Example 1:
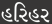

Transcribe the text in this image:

હરિહર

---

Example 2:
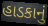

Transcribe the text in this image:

હાડકાનું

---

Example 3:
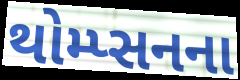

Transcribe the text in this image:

થોમ્પ્સનના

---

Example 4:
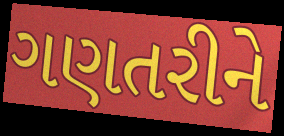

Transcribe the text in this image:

ગણતરીને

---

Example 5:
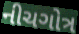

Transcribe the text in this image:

નીચગોત્ર